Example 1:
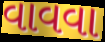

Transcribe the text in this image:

વાવવા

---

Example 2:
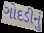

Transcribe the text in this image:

ગોદડીનું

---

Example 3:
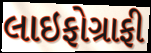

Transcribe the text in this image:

લાઇફોગ્રાફી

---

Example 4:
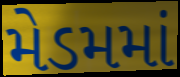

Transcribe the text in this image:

મેડમમાં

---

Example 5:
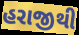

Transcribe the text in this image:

હરાજીથી